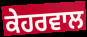
ਕੇਹਰਵਾਲ